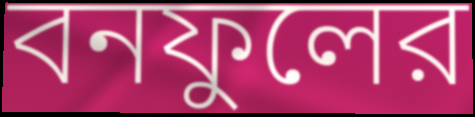
বনফুলের